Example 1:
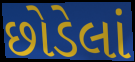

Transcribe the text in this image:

છોડેલાં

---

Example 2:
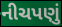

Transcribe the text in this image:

નીચપણું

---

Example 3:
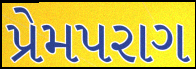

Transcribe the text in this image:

પ્રેમપરાગ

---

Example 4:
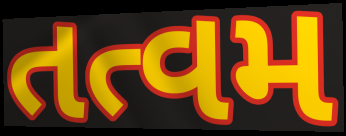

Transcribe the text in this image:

તત્વમ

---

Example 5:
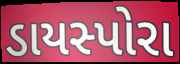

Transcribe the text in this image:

ડાયસ્પોરા